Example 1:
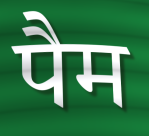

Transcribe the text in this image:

पैम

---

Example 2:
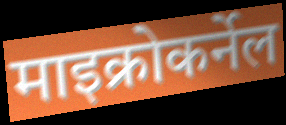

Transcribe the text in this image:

माइक्रोकर्नेल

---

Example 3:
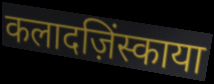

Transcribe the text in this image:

कलादज़िंस्काया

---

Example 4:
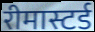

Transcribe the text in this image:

रीमास्टर्ड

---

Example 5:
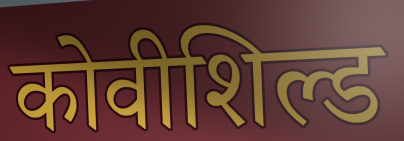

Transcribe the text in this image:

कोवीशिल्ड